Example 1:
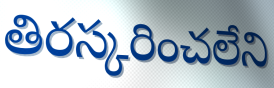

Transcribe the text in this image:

తిరస్కరించలేని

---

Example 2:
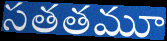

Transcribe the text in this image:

సతతమూ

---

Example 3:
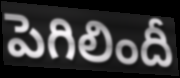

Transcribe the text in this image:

పెగిలిందీ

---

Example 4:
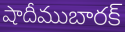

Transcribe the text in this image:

షాదీముబారక్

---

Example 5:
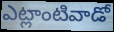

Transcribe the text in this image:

ఎట్లాంటివాడో